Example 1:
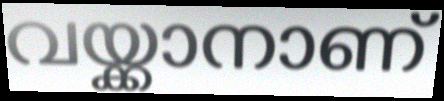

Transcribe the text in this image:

വയ്ക്കാനാണ്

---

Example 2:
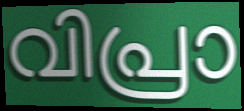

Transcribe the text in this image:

വിപ്രാ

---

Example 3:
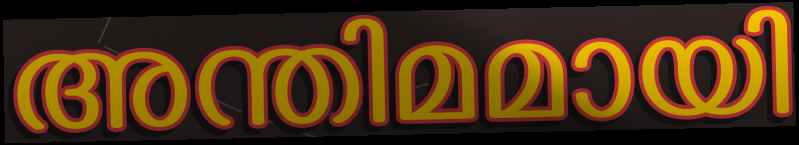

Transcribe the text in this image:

അന്തിമമായി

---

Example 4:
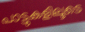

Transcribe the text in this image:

പാട്ടുകളിലൂടെ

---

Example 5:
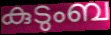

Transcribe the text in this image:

കുടുംബ